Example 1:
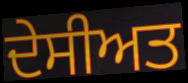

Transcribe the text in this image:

ਦੇਸੀਅਤ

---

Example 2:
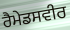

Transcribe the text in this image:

ਰੈਮੇਡਸਵੀਰ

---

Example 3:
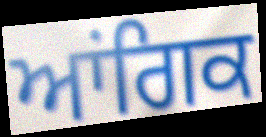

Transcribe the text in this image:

ਆਂਗਿਕ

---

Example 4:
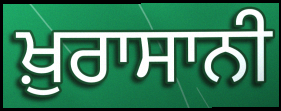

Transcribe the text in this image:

ਖ਼ੁਰਾਸਾਨੀ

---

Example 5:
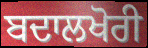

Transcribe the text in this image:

ਬਦਾਲਖੋਰੀ